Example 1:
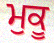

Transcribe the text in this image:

ਮੁਕੂ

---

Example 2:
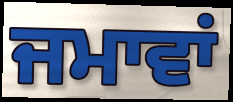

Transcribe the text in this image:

ਜਮਾਵਾਂ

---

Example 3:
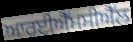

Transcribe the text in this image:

ਆਰਈਐੱਮਸੀਐੱਲ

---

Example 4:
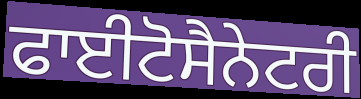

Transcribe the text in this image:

ਫਾਈਟੋਸੈਨੇਟਰੀ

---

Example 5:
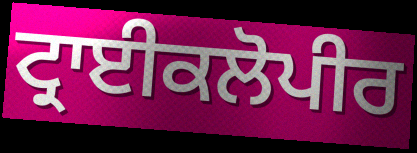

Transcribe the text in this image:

ਟ੍ਰਾਈਕਲੋਪੀਰ